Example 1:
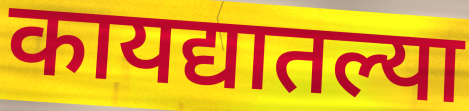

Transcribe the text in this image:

कायद्यातल्या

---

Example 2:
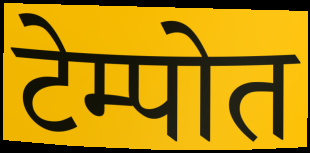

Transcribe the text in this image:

टेम्पोत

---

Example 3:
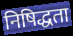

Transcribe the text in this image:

निषिद्धता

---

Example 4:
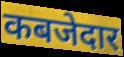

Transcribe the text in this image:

कबजेदार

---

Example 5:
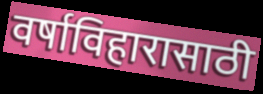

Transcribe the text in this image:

वर्षाविहारासाठी